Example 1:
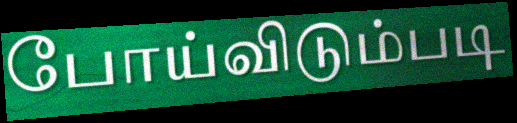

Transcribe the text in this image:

போய்விடும்படி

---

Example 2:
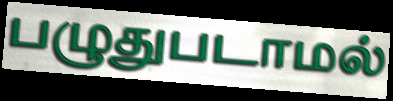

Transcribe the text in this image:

பழுதுபடாமல்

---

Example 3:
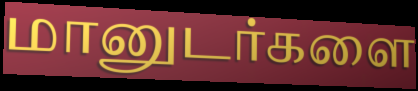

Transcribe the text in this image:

மானுடர்களை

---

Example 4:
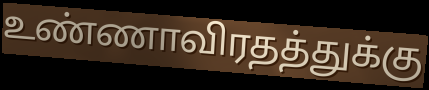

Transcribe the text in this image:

உண்ணாவிரதத்துக்கு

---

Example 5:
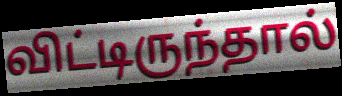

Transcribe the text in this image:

விட்டிருந்தால்